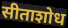
सीताशोध